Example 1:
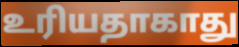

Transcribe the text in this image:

உரியதாகாது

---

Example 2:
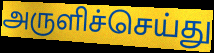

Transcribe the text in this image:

அருளிச்செய்து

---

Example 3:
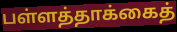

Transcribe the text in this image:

பள்ளத்தாக்கைத்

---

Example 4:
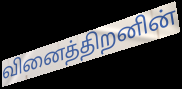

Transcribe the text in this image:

வினைத்திறனின்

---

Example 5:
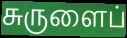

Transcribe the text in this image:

சுருளைப்